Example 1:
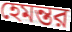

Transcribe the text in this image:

হেমন্তর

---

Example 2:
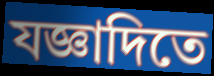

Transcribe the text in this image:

যজ্ঞাদিতে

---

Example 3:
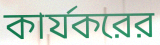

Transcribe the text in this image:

কার্যকরের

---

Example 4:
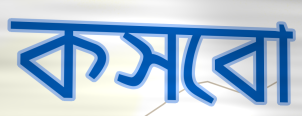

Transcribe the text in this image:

কসবো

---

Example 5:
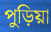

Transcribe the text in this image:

পুড়িয়া